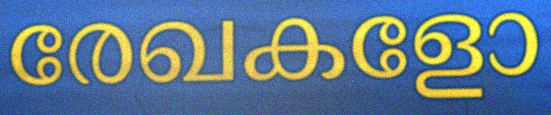
രേഖകളോ